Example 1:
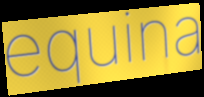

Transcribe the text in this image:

equina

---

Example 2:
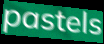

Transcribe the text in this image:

pastels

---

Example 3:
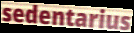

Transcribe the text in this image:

sedentarius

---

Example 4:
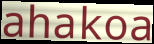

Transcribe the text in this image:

ahakoa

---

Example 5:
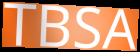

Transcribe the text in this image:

TBSA